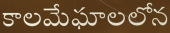
కాలమేఘాలలోన